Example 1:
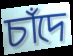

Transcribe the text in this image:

চাঁদে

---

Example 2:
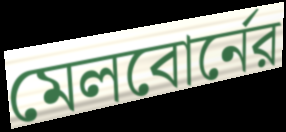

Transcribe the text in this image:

মেলবোর্নের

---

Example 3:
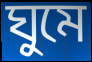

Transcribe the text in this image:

ঘুমে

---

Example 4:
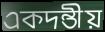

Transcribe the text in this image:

একদন্তীয়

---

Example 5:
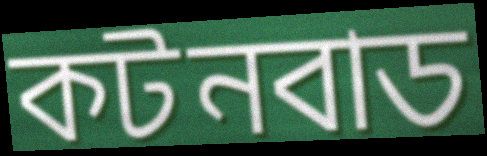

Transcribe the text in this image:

কটনবাড